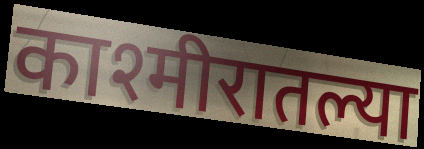
काश्मीरातल्या